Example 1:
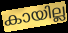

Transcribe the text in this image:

കായില്ല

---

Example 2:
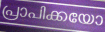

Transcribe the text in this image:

പ്രാപിക്കയോ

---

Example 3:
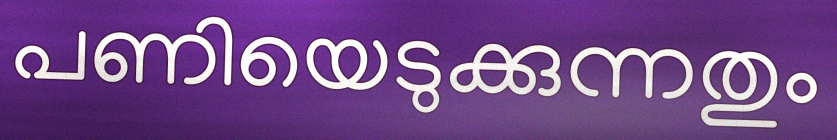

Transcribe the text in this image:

പണിയെടുക്കുന്നതും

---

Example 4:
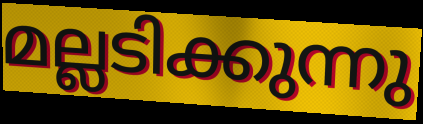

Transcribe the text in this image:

മല്ലടിക്കുന്നു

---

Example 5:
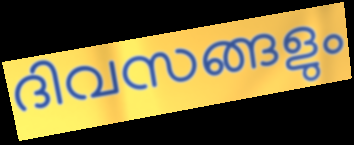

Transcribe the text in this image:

ദിവസങ്ങളും